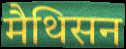
मैथिसन